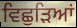
ਵਿਛੁੜਿਆਂ